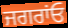
ਜਗਰਾਂਓ